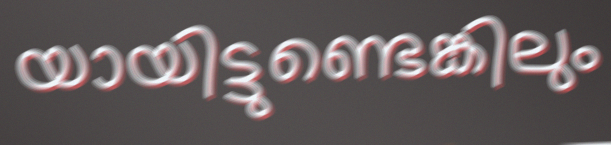
യായിട്ടുണ്ടെങ്കിലും